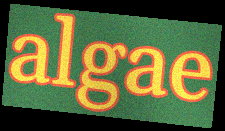
algae